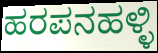
ಹರಪನಹಳ್ಳಿ